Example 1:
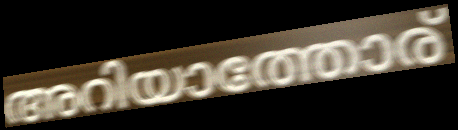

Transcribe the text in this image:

അറിയാത്തോര്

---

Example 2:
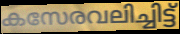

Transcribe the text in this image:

കസേരവലിച്ചിട്ട്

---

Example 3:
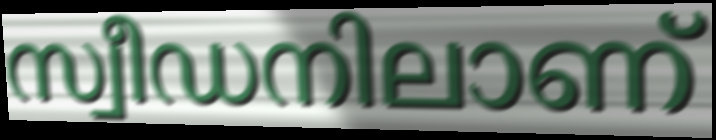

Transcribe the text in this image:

സ്വീഡനിലാണ്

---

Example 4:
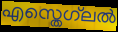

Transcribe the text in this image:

എസ്തെഗ്‌ലൽ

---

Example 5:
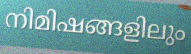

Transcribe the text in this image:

നിമിഷങ്ങളിലും